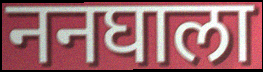
ननघाला